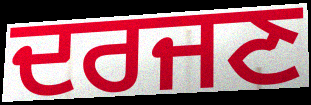
ਦਰਜਣ